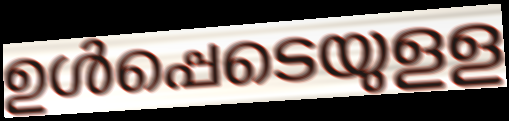
ഉൾപ്പെടെയുളള